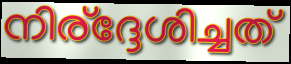
നിര്ദ്ദേശിച്ചത്